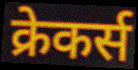
क्रेकर्स